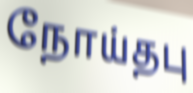
நோய்தபு